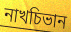
নাখচিভান